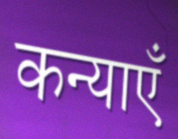
कन्याएँ